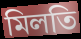
মিলতি